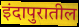
इंदापुरातील